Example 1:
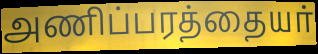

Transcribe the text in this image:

அணிப்பரத்தையர்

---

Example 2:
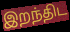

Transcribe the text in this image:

இறந்திட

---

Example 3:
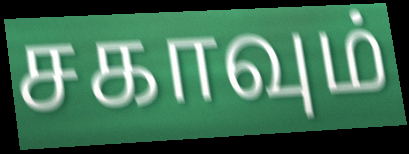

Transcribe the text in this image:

சகாவும்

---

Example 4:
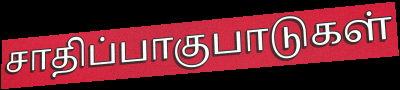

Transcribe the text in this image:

சாதிப்பாகுபாடுகள்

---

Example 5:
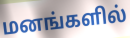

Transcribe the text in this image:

மனங்களில்